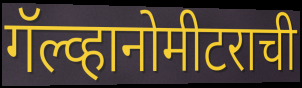
गॅल्व्हानोमीटराची